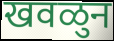
खवळुन